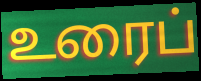
உரைப்